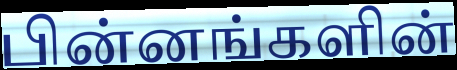
பின்னங்களின்